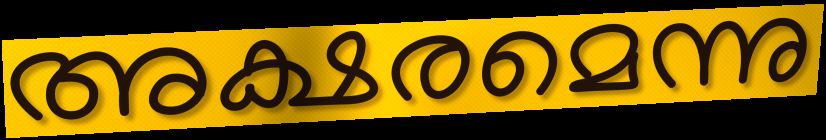
അക്ഷരമെന്നു